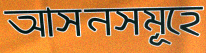
আসনসমূহে